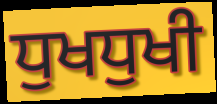
ਧੁਖਧੁਖੀ